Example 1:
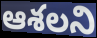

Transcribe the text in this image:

ఆశలని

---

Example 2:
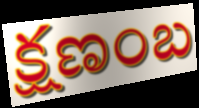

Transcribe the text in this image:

క్షణంబ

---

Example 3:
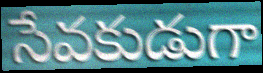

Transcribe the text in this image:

సేవకుడుగా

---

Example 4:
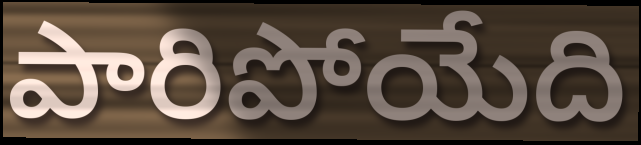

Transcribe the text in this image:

పారిపోయేది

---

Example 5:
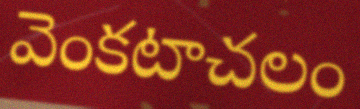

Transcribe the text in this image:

వెంకటాచలం